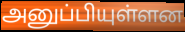
அனுப்பியுள்ளன